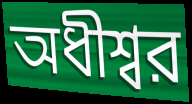
অধীশ্বর